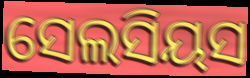
ସେଲସିୟସ